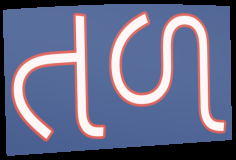
તળ